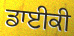
ਡਾਈਕੀ